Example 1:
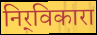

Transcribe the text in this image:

निर्विकारा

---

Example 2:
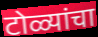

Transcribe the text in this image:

टोळ्यांचा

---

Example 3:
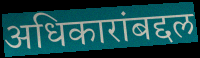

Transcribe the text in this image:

अधिकारांबद्दल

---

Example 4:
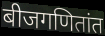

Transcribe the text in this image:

बीजगणितांत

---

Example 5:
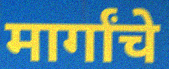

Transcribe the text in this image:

मार्गांचे